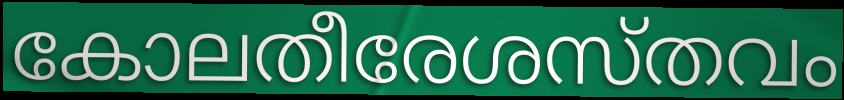
കോലതീരേശസ്തവം